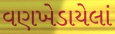
વણખેડાયેલાં